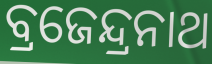
ବ୍ରଜେନ୍ଦ୍ରନାଥ